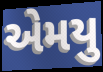
એમયુ